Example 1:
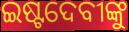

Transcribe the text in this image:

ଇଷ୍ଟଦେବୀଙ୍କୁ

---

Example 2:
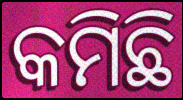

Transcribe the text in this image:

କମିଛି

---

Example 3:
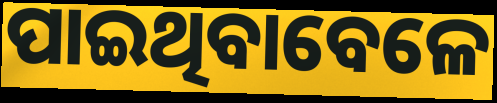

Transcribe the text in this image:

ପାଇଥିବାବେଳେ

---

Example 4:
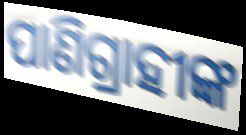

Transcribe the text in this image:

ପାଣିଗ୍ରାହୀଙ୍କ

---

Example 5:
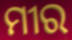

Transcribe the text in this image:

ମୀର